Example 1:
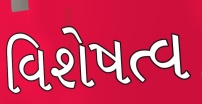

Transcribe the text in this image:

વિશેષત્વ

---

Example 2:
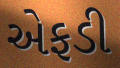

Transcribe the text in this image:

એફડી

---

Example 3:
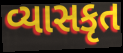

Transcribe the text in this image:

વ્યાસકૃત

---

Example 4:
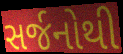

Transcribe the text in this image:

સર્જનોથી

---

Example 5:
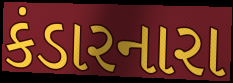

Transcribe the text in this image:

કંડારનારા